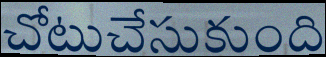
చోటుచేసుకుంది